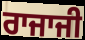
ਰਾਜਾਜੀ